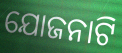
ଯୋଜନାଟି